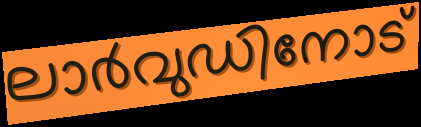
ലാർവുഡിനോട്